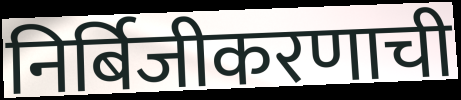
निर्बिजीकरणाची